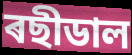
ৰছীডাল